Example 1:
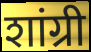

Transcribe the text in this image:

शांग्री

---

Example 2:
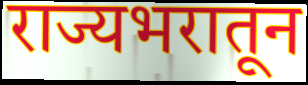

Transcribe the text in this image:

राज्यभरातून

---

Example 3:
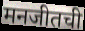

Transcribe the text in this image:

मनजीतची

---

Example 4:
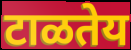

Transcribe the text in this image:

टाळतेय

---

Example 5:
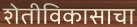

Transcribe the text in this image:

शेतीविकासाचा